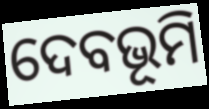
ଦେବଭୂମି